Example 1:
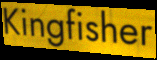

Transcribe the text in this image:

Kingfisher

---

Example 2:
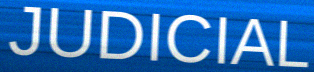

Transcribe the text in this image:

JUDICIAL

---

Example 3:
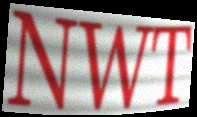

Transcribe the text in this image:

NWT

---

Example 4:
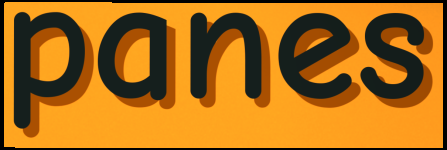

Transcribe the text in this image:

panes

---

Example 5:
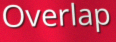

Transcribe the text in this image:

Overlap